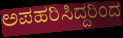
ಅಪಹರಿಸಿದ್ದರಿಂದ